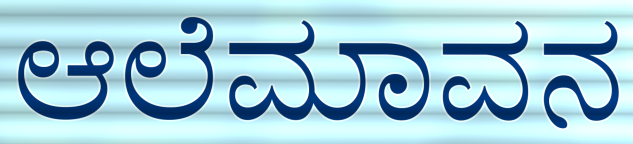
ಆಲೆಮಾವನ